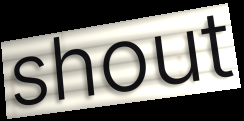
shout